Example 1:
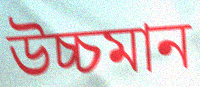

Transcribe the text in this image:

উচ্চমান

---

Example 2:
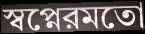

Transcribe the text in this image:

স্বপ্নেরমতো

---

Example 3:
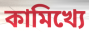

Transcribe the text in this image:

কামিখ্যে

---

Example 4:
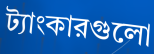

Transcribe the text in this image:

ট্যাংকারগুলো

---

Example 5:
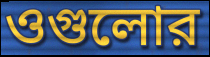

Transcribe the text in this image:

ওগুলোর